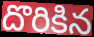
దొరికిన